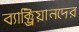
ব্যাক্ট্রিয়ানদের